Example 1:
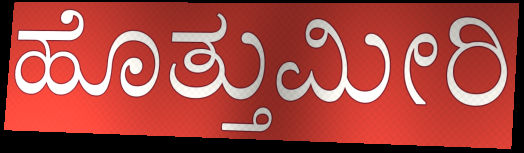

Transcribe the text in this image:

ಹೊತ್ತುಮೀರಿ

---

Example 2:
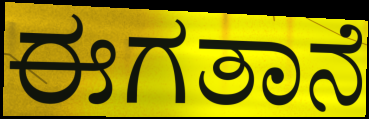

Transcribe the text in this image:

ಈಗತಾನೆ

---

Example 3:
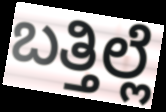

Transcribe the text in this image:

ಬತ್ತಿಲ್ಲೆ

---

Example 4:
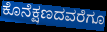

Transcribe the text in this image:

ಕೊನೆಕ್ಷಣದವರೆಗೂ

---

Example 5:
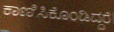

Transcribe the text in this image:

ಕಾಣಿಸಿಕೊಂಡಿದ್ದರೆ